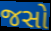
જસો